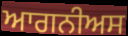
ਆਗਨੀਅਸ